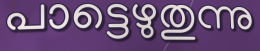
പാട്ടെഴുതുന്നു